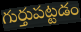
గుర్తుపట్టడం